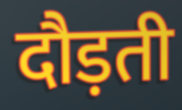
दौड़ती